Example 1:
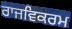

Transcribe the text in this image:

ਰਾਜਵਿਕਰਮ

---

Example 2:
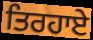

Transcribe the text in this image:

ਤਿਰਹਾਏ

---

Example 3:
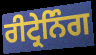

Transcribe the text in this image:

ਰੀਟ੍ਰੇਨਿੰਗ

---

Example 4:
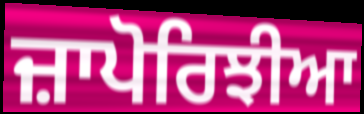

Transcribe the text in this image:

ਜ਼ਾਪੋਰਿਝੀਆ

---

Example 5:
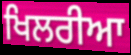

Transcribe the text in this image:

ਖਿਲਰੀਆ